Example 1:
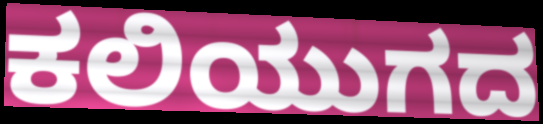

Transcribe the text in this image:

ಕಲಿಯುಗದ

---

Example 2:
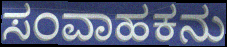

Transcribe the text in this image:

ಸಂವಾಹಕನು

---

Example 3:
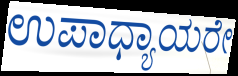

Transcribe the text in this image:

ಉಪಾಧ್ಯಾಯರೇ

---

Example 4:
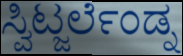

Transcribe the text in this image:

ಸ್ವಿಟ್ಜರ್ಲೆಂಡ್ನ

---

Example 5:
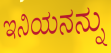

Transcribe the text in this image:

ಇನಿಯನನ್ನು